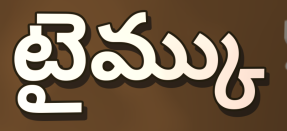
టైమ్కు